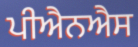
ਪੀਐਨਐਸ